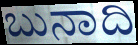
ಬುನಾದಿ